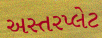
અસ્તરપ્લેટ